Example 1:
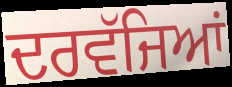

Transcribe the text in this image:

ਦਰਵੱਜਿਆਂ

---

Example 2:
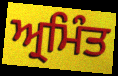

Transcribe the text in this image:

ਅ੍ਰਮਿੰਤ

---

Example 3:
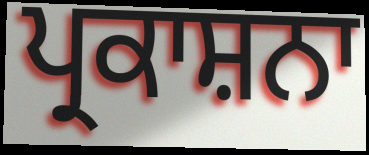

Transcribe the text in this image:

ਪ੍ਰਕਾਸ਼ਨਾ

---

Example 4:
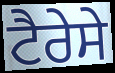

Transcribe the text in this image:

ਟੈਰੇਸੇ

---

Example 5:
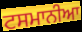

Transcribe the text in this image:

ਟਸਮਾਨੀਆ